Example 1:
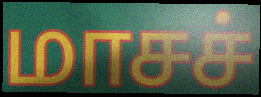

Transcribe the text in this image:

மாசச்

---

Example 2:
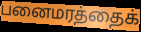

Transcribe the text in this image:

பனைமரத்தைக்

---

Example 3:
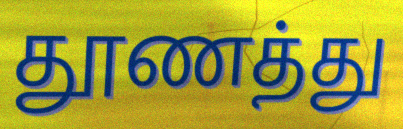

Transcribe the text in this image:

தூணத்து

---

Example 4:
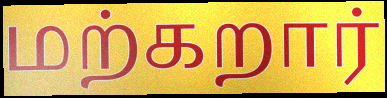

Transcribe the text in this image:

மற்கறார்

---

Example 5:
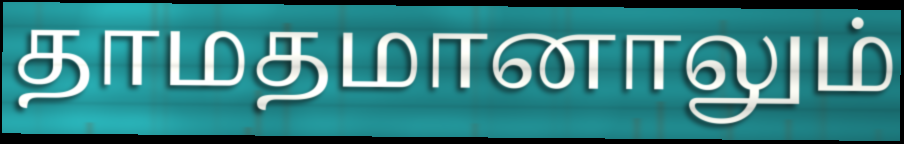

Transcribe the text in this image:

தாமதமானாலும்